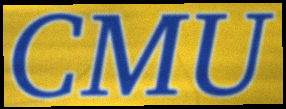
CMU